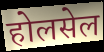
होलसेल